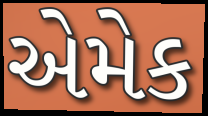
એમેક